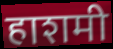
हाशमी